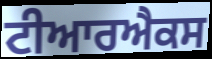
ਟੀਆਰਐਕਸ